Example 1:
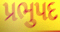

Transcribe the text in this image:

પ્રભુપદ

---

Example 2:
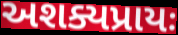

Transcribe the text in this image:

અશક્યપ્રાયઃ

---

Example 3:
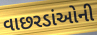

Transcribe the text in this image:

વાછરડાંઓની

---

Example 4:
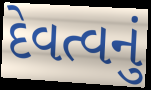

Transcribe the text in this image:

દેવત્વનું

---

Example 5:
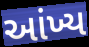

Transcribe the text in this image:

આંખ્ય